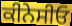
ਕੀਨੇਸੀਓ